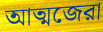
আত্মজেরা